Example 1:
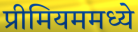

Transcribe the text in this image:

प्रीमियममध्ये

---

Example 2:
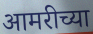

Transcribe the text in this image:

आमरीच्या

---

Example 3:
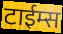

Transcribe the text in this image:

टाईम्स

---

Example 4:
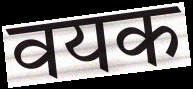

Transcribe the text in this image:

वयक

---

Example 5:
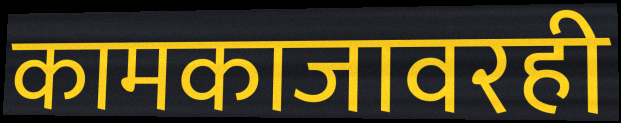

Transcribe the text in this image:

कामकाजावरही